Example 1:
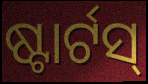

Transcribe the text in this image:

ଷ୍ଟାର୍ଟସ୍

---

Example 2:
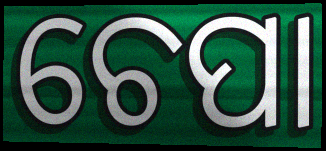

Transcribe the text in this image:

ଚେପା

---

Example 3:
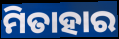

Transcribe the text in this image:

ମିତାହାର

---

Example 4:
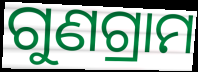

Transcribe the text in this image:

ଗୁଣଗ୍ରାମ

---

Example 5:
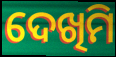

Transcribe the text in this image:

ଦେଖିମି